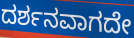
ದರ್ಶನವಾಗದೇ